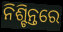
ନିଶ୍ଚିନ୍ତରେ